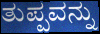
ತುಪ್ಪವನ್ನು